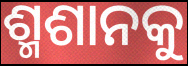
ଶ୍ମଶାନକୁ